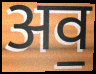
अव॒